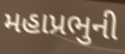
મહાપ્રભુની